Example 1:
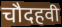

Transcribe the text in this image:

चौदहवी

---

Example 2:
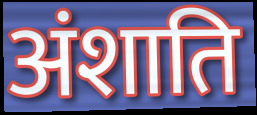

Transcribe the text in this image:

अंशाति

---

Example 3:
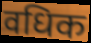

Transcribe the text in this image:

वधिक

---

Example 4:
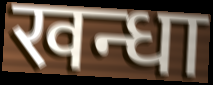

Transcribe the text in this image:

खन्धा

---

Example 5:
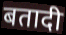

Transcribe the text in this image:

बतादी